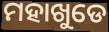
ମହାଖୁଡେ